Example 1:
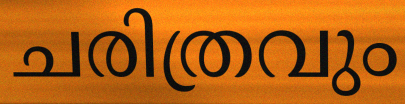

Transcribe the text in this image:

ചരിത്രവും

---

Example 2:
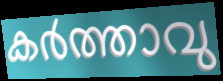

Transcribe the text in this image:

കർത്താവു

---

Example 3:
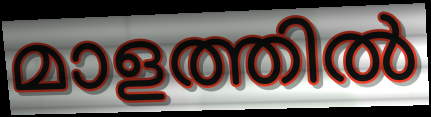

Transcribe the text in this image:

മാളത്തിൽ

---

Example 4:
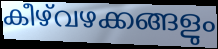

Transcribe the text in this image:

കീഴ്‌വഴക്കങ്ങളും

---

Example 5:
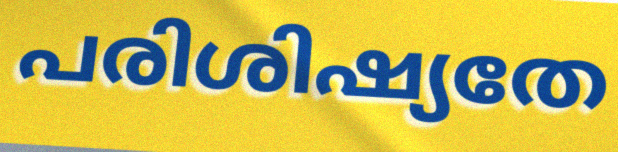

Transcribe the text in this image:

പരിശിഷ്യതേ